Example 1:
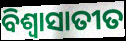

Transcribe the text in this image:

ବିଶ୍ୱାସାତୀତ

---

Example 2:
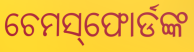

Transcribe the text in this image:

ଚେମସ୍‌ଫୋର୍ଡଙ୍କ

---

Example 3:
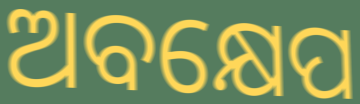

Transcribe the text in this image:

ଅବକ୍ଷେପ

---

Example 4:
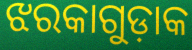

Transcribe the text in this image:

ଝରକାଗୁଡ଼ାକ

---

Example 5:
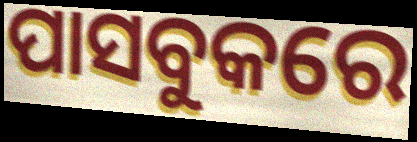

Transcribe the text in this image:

ପାସବୁକରେ